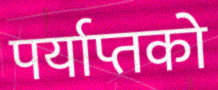
पर्याप्तको